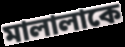
মালালাকে